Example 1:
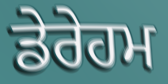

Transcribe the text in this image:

ਡੇਰੇਹਮ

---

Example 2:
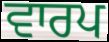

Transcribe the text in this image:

ਵਾਰਪ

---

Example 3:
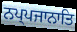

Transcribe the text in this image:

ਨਪ੍ਪਜਾਨਾਤਿ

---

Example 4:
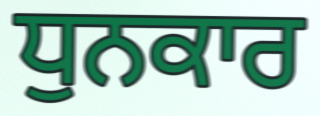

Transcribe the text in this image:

ਧੁਨਕਾਰ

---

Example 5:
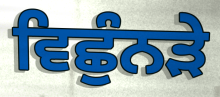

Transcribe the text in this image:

ਵਿਛੁੰਨੜੇ